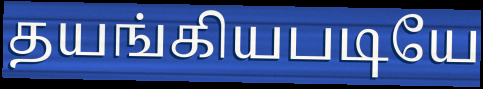
தயங்கியபடியே